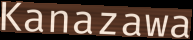
Kanazawa